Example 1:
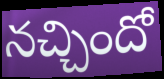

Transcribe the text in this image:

నచ్చిందో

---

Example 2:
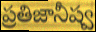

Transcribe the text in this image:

ప్రతిజానీష్వ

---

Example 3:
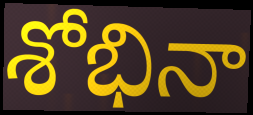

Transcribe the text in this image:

శోభినా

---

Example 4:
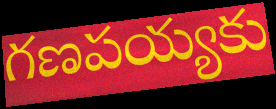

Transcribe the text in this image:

గణపయ్యకు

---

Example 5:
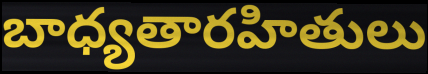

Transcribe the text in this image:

బాధ్యతారహితులు